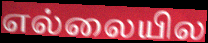
எல்லையில